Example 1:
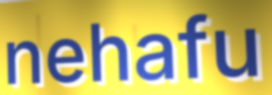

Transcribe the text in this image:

nehafu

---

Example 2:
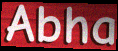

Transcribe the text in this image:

Abha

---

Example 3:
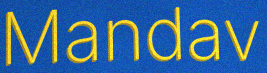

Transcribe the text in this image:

Mandav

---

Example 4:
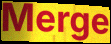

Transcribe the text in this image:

Merge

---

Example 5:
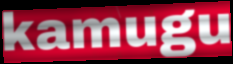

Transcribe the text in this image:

kamugu